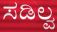
ಸಡಿಲ್ವ